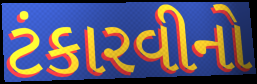
ટંકારવીનો